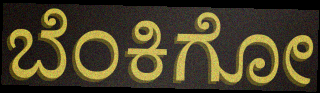
ಬೆಂಕಿಗೋ